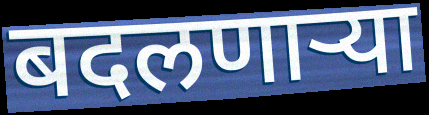
बदलणार्‍या